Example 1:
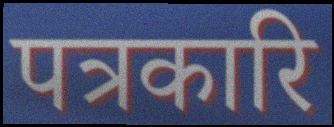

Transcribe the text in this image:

पत्रकारि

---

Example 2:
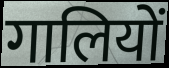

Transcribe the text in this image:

गालियों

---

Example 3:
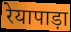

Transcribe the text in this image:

रेयापाड़ा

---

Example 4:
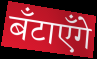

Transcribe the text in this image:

बँटाएँगे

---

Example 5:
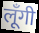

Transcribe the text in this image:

लूँगी